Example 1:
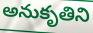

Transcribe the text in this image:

అనుకృతిని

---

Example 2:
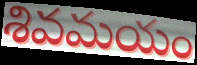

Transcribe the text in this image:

శివమయం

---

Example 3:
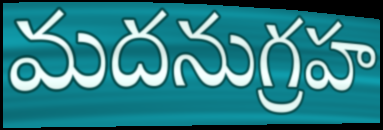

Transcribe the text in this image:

మదనుగ్రహ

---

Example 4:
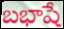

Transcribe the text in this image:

బభాషే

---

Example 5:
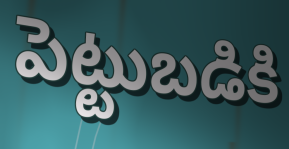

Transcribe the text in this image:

పెట్టుబడికి